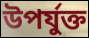
উপৰ্যুক্ত